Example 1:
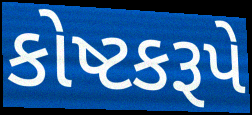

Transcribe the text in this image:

કોષ્ટકરૂપે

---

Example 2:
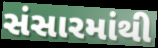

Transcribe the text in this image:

સંસારમાંથી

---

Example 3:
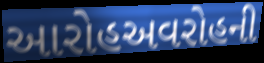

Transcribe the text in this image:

આરોહઅવરોહની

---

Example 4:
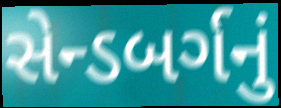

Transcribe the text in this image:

સેન્ડબર્ગનું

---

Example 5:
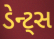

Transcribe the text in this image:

ડેન્ટ્સ